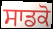
ਸਾਡਕੋ